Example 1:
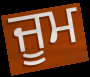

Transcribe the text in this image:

ਜੂਮ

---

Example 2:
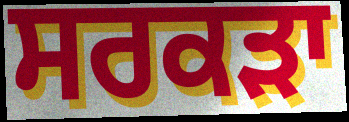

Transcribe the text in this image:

ਸਰਕੜਾ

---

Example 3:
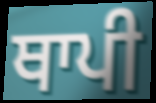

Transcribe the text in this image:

ਥਾਪੀ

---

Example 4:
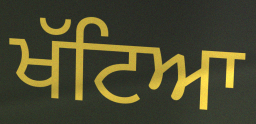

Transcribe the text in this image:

ਖੱਟਿਆ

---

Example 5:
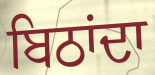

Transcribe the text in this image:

ਬਿਠਾਂਦਾ